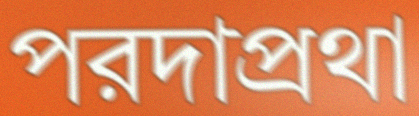
পরদাপ্রথা